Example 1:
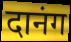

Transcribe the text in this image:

दानंग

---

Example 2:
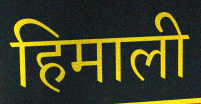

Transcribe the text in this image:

हिमाली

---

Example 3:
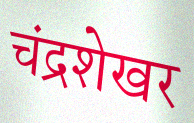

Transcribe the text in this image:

चंद्रशेखर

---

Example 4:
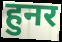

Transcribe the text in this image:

हुनर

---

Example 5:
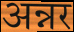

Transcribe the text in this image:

अन्नर